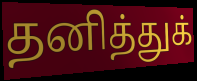
தனித்துக்